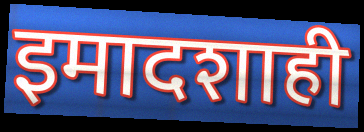
इमादशाही